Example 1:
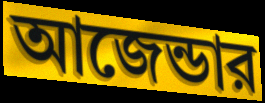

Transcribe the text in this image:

আজেন্ডার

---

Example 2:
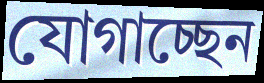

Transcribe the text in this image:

যোগাচ্ছেন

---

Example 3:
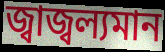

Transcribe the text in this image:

জ্বাজ্বল্যমান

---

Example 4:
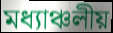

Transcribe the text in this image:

মধ্যাঞ্চলীয়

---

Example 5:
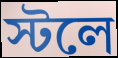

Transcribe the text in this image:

স্টলে